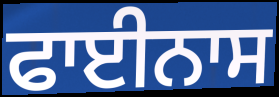
ਫਾਈਨਾਸ